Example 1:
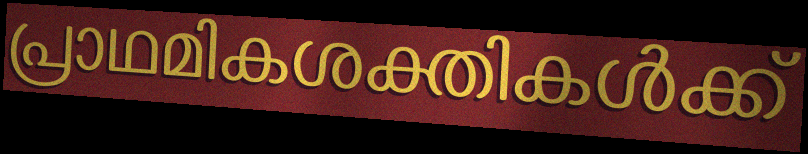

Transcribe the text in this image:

പ്രാഥമികശക്തികൾക്ക്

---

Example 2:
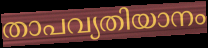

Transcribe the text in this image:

താപവ്യതിയാനം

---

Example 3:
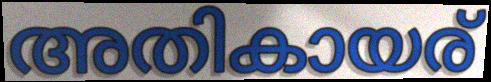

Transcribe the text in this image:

അതികായര്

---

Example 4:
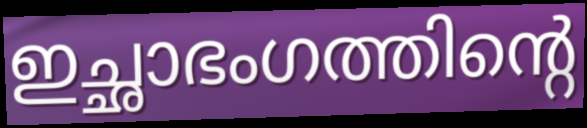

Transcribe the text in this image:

ഇച്ഛാഭംഗത്തിന്റെ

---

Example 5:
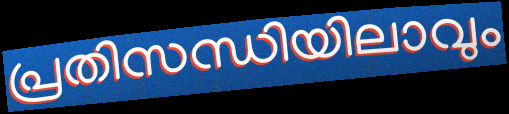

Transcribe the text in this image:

പ്രതിസന്ധിയിലാവും